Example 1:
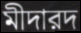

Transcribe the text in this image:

মীদারদ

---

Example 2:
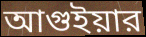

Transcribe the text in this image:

আগুইয়ার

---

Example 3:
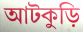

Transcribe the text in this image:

আটকুড়ি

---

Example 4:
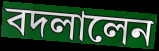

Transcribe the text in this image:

বদলালেন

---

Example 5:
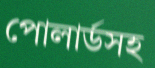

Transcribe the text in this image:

পোলার্ডসহ